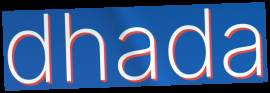
dhada